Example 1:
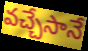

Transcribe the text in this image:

వచ్చేసానే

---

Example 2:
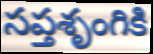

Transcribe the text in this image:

సప్తశృంగికి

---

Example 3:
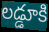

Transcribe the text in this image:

లడ్డూకి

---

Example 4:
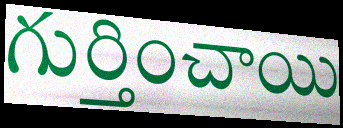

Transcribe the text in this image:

గుర్తించాయి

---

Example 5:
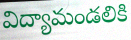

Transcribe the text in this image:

విద్యామండలికి